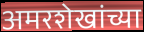
अमरशेखांच्या